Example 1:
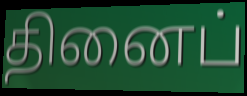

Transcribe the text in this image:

தினைப்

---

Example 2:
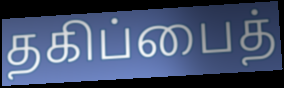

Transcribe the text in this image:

தகிப்பைத்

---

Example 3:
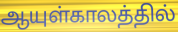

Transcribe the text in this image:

ஆயுள்காலத்தில்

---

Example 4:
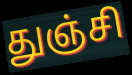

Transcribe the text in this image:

துஞ்சி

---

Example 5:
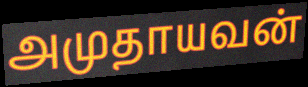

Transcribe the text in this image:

அமுதாயவன்